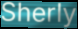
Sherly